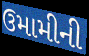
ઉમામીની